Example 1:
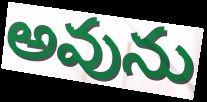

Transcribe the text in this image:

అవును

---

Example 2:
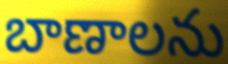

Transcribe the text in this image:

బాణాలను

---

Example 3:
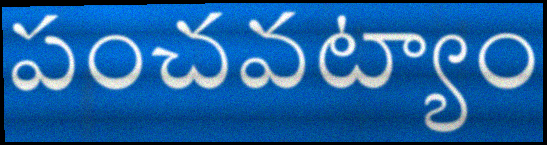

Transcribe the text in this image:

పంచవట్యాం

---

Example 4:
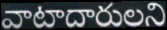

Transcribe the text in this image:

వాటాదారులని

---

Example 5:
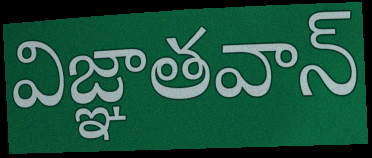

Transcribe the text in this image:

విజ్ఞాతవాన్